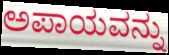
ಅಪಾಯವನ್ನು